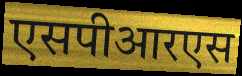
एसपीआरएस